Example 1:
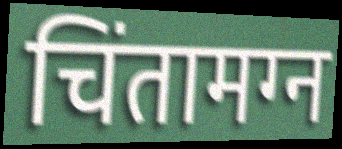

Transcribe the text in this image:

चिंतामग्न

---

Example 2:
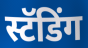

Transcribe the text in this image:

स्टॅडिंग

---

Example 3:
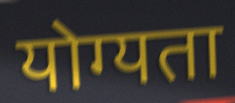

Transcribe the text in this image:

योग्यता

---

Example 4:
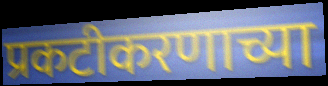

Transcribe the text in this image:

प्रकटीकरणाच्या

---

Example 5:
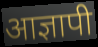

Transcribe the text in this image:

आज्ञापी